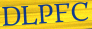
DLPFC